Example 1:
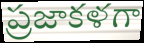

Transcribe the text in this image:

ప్రజాకళగా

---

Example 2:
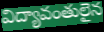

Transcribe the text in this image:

విద్యావంతులైన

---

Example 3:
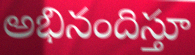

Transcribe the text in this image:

అభినందిస్తూ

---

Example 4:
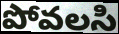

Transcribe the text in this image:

పోవలసి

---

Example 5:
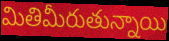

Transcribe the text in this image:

మితిమీరుతున్నాయి